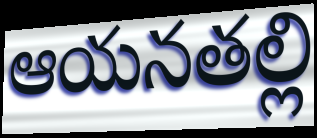
ఆయనతల్లి